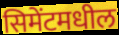
सिमेंटमधील